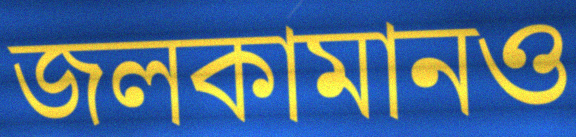
জলকামানও